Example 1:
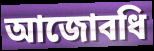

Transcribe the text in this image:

আজোবধি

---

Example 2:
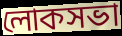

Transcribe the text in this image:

লোকসভা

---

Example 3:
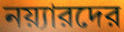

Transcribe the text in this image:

নয়্যারদের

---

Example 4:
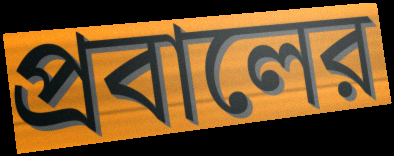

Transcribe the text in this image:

প্রবালের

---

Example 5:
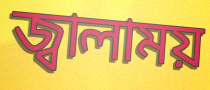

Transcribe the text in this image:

জ্বালাময়